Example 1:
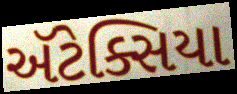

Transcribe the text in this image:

ઍટેક્સિયા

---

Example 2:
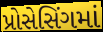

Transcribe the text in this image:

પ્રોસેસિંગમાં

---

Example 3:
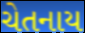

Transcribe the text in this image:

ચેતનાય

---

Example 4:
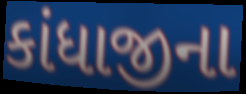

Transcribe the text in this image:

કાંધાજીના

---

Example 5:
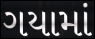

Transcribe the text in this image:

ગયામાં